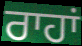
ਰਾਹਾਂ